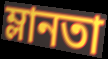
ম্লানতা